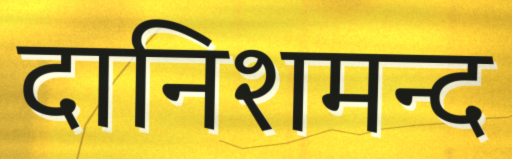
दानिशमन्द